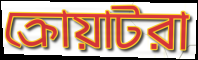
ক্রোয়াটরা